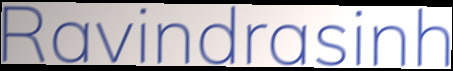
Ravindrasinh